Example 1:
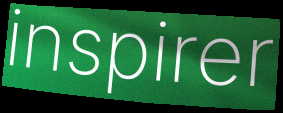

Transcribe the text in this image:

inspirer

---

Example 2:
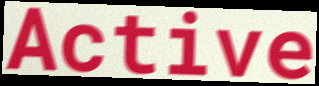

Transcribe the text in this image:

Active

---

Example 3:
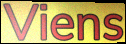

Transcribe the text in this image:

Viens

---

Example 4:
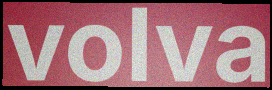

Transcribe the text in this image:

volva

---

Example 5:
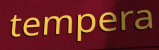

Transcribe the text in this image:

tempera